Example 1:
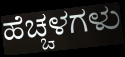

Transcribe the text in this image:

ಹೆಚ್ಚಳಗಳು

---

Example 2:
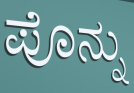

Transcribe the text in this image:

ಪೊನ್ನು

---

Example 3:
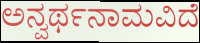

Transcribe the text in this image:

ಅನ್ವರ್ಥನಾಮವಿದೆ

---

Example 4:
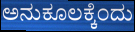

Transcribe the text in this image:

ಅನುಕೂಲಕ್ಕೆಂದು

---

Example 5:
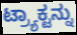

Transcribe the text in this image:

ಟ್ರ್ಯಾಕ್ಟನ್ನು